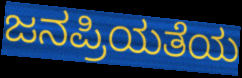
ಜನಪ್ರಿಯತೆಯ